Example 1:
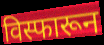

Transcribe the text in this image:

विस्फारून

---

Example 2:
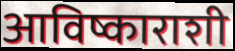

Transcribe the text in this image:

आविष्काराशी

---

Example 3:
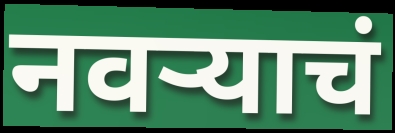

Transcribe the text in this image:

नवर्‍याचं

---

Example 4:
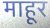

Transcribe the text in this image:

माहूर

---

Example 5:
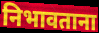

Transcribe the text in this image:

निभावताना